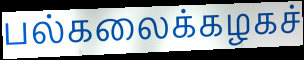
பல்கலைக்கழகச்